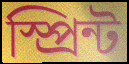
স্প্রিন্ট